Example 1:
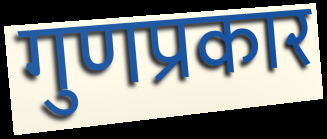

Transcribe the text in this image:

गुणप्रकार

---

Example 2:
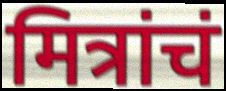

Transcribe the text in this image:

मित्रांचं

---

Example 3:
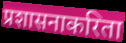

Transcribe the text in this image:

प्रशासनाकरिता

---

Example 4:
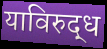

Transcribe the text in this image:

याविरुद्ध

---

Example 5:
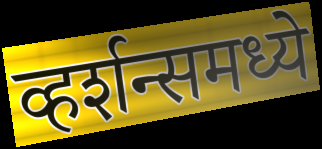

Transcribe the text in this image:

व्हर्शन्समध्ये